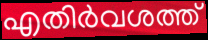
എതിർവശത്ത്